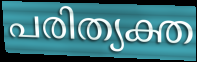
പരിത്യക്ത